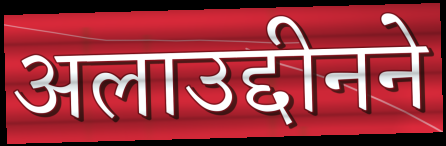
अलाउद्दीनने